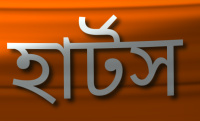
হার্টস